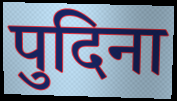
पुदिना